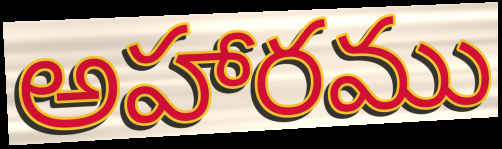
అహారము